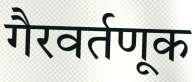
गैरवर्तणूक